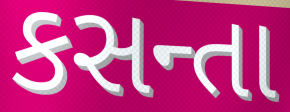
કસન્તા